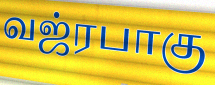
வஜ்ரபாகு